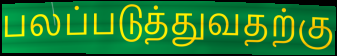
பலப்படுத்துவதற்கு